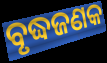
ବୃଦ୍ଧଜଣକ